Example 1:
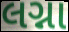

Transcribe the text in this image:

લગ્ના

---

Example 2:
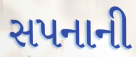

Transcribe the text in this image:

સપનાની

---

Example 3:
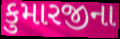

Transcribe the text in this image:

કુમારજીના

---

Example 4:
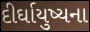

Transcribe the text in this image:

દીર્ઘાયુષ્યના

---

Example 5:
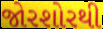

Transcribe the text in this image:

જોરશોરથી